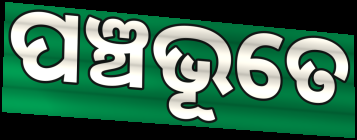
ପଞ୍ଚଭୂତେ